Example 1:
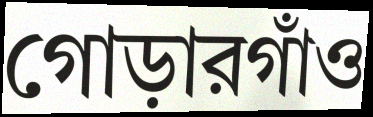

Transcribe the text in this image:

গোড়ারগাঁও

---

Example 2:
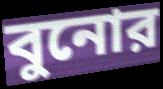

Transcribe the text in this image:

বুনোর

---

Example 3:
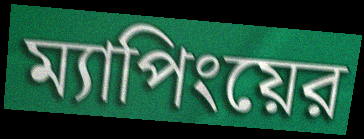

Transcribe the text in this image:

ম্যাপিংয়ের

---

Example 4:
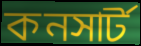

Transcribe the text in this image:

কনসার্ট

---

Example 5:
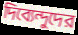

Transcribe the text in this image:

দিব্যেন্দুদের